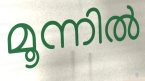
മൂന്നിൽ